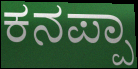
ಕನಪ್ಪಾ